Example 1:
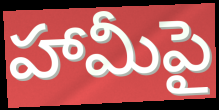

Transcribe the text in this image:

హామీపై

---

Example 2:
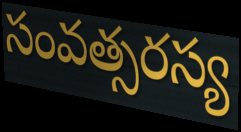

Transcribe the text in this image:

సంవత్సరస్య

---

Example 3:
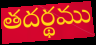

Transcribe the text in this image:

తదర్థము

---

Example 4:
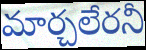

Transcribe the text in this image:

మార్చలేరనీ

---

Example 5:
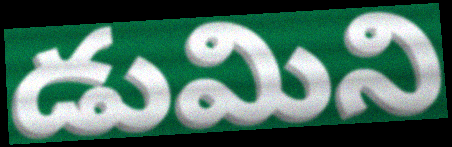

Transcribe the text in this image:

డుమిని